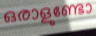
ഒരാളുണ്ടോ